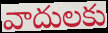
వాదులకు